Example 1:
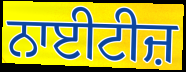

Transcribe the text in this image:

ਨਾਈਟੀਜ਼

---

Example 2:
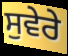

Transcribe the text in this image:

ਸੁਵੇਰੇ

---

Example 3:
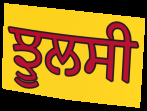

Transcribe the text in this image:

ਝੂਲਸੀ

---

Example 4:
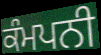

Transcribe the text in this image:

ਕੰਮਪਨੀ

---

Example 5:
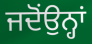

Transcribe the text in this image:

ਜਦੋਂਉਨ੍ਹਾਂ